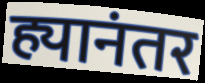
ह्यानंतर